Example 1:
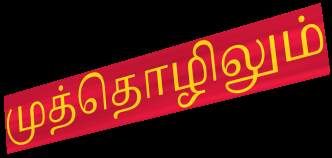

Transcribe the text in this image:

முத்தொழிலும்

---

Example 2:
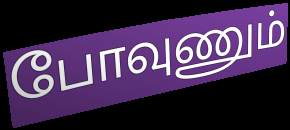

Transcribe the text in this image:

போவுணும்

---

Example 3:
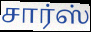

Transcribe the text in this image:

சார்ஸ்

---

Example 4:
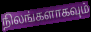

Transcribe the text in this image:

நிலங்களாகவும்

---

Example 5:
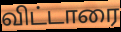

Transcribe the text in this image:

விட்டாரை